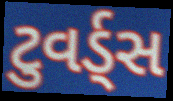
ટુવર્ડ્સ